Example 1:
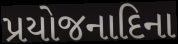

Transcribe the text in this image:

પ્રયોજનાદિના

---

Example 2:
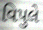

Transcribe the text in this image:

વિપુલે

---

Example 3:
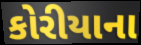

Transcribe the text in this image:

કોરીયાના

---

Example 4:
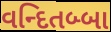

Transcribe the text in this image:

વન્દિતબ્બા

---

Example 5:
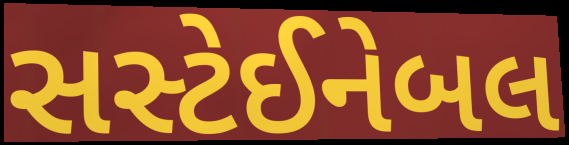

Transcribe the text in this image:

સસ્ટેઈનેબલ